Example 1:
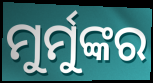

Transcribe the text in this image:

ମୁର୍ମୁଙ୍କର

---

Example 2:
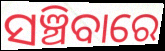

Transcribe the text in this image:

ସଞ୍ଚିବାରେ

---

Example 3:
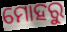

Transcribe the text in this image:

ମୋହରୁ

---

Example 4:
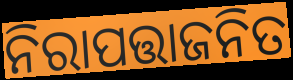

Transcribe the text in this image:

ନିରାପତ୍ତାଜନିତ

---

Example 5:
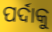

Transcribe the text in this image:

ପର୍ଦାକୁ